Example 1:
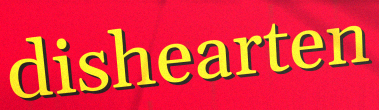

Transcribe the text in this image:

dishearten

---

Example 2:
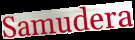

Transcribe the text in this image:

Samudera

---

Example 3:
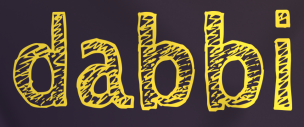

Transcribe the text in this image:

dabbi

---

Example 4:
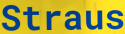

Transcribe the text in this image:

Straus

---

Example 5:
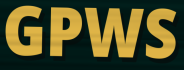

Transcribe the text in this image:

GPWS